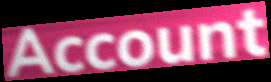
Account